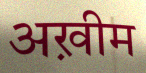
अख़ीम